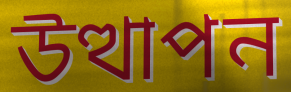
উত্থাপন